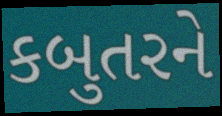
કબુતરને